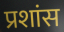
प्रशांस